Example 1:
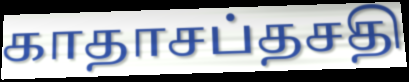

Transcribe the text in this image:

காதாசப்தசதி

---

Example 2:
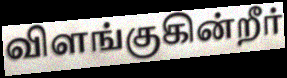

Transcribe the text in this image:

விளங்குகின்றீர்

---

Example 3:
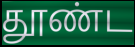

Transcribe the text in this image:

தூண்ட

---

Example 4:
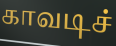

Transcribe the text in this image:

காவடிச்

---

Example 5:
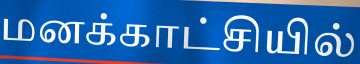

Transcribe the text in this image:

மனக்காட்சியில்